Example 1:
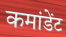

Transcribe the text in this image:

कमांडेंट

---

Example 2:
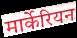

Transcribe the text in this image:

मार्केरियन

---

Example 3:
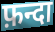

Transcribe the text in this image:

फ़न्दा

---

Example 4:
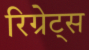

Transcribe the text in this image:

रिग्रेट्स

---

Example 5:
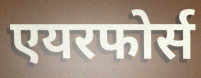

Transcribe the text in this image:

एयरफोर्स